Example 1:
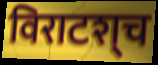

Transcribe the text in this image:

विराटश्च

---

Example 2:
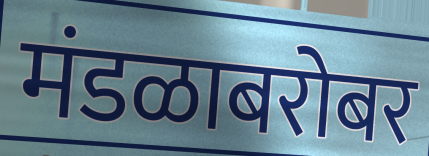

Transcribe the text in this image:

मंडळाबरोबर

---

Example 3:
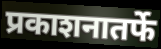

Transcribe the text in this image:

प्रकाशनातर्फे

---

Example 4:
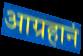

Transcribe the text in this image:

आग्रहानं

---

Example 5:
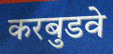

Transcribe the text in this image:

करबुडवे